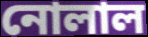
নোলাল